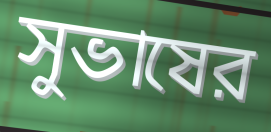
সুভাষের